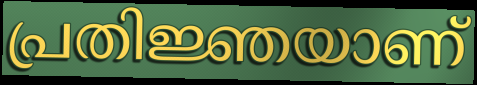
പ്രതിജ്ഞയാണ്